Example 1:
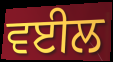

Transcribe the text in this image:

ਵਈਲ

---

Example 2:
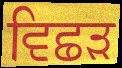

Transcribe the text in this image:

ਵਿਛਡ਼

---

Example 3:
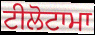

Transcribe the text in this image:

ਟੀਲੋਟਾਮਾ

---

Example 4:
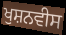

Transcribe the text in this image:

ਖੁਸ਼ਨਵੀਸ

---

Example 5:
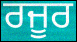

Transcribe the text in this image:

ਰਜੂਰ